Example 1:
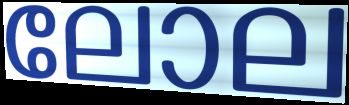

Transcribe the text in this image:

ലോല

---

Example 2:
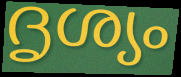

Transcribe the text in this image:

ദൃശ്യം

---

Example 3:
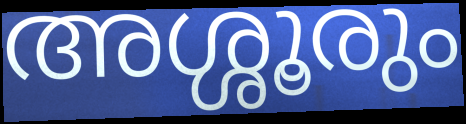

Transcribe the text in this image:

അശ്ശൂരും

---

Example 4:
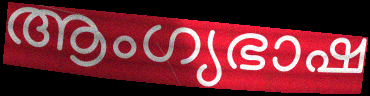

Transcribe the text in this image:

ആംഗ്യഭാഷ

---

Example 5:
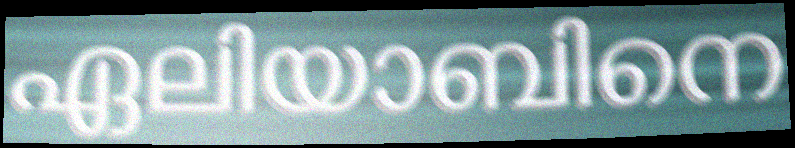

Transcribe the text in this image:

ഏലിയാബിനെ